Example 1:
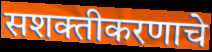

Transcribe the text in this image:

सशक्तीकरणाचे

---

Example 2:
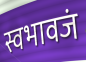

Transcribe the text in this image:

स्वभावजं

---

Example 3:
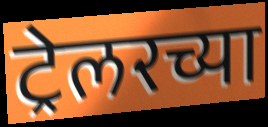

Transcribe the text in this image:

ट्रेलरच्या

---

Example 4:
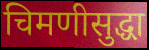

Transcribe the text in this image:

चिमणीसुद्धा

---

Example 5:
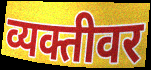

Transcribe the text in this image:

व्यक्तीवर